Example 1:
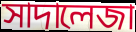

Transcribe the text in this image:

সাদালেজা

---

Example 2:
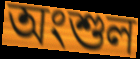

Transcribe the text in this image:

অংশুল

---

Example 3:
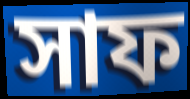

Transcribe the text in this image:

সাফ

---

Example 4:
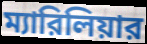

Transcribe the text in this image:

ম্যারিলিয়ার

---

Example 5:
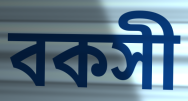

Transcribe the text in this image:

বকসী